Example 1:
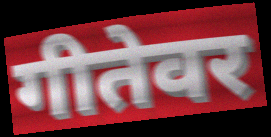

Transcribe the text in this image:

गीतेवर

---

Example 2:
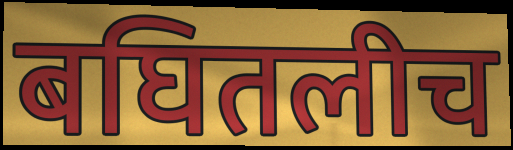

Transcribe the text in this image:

बघितलीच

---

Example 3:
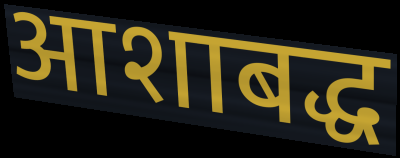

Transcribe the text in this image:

आशाबद्ध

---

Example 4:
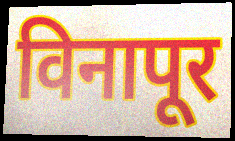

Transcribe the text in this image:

विनापूर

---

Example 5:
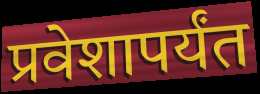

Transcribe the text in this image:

प्रवेशापर्यंत